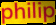
philip